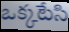
ఒక్కటేసి